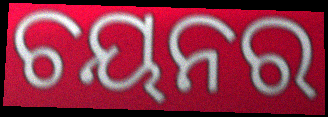
ଚୟନର